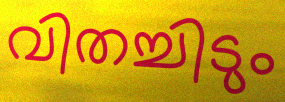
വിതച്ചിടും